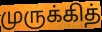
முருக்கித்